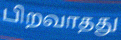
பிறவாதது